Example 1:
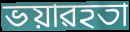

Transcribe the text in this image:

ভয়াৱহতা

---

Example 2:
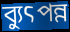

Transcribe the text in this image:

ব্যুৎপন্ন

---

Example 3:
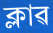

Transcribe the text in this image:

ক্লাৱ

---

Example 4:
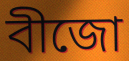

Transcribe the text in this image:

বীজো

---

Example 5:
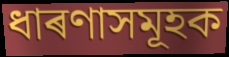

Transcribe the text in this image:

ধাৰণাসমূহক